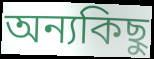
অন্যকিছু